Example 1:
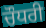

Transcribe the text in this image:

ਚੌਧਰੀ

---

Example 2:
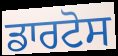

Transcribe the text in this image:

ਡਾਰਟੋਸ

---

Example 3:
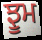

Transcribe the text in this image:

ਝੂਮ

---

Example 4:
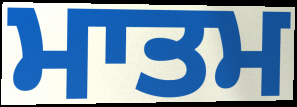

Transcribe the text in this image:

ਮਾਤਮ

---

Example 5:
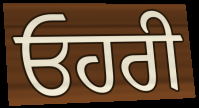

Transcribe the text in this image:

ਓਹਰੀ